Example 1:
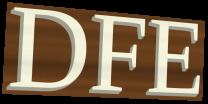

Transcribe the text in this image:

DFE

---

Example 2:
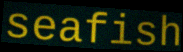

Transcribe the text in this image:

seafish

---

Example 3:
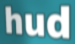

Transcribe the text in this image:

hud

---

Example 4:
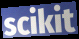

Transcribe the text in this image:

scikit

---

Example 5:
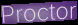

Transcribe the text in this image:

Proctor